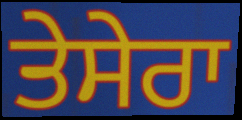
ਤੇਸੇਰਾ